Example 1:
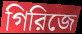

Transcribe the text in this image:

গিরিজে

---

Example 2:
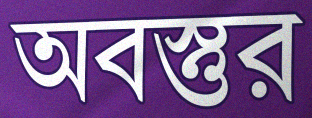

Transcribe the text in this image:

অবস্তুর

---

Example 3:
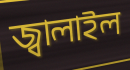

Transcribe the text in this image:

জ্বালাইল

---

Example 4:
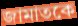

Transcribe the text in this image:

জামাতকে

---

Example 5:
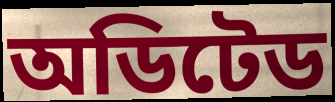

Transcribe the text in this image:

অডিটেড